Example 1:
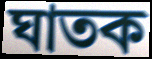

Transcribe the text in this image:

ঘাতক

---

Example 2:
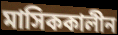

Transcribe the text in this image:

মাসিককালীন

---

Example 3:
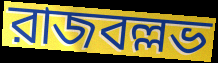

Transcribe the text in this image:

রাজবল্লভ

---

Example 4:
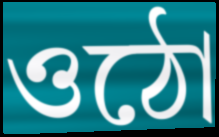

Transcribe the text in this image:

ওঠো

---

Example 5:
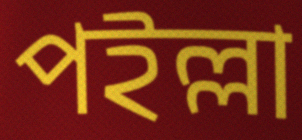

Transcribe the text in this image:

পইল্লা